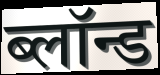
ब्लॉन्ड